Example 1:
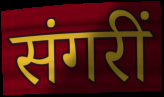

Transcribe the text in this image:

संगरीं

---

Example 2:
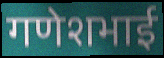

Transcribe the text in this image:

गणेशभाई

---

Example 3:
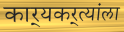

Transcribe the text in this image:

कार्यकर्त्यांला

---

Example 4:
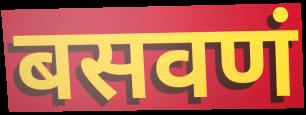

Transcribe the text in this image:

बसवणं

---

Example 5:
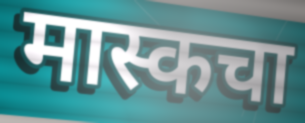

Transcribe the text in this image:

मास्कचा